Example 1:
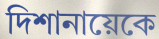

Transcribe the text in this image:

দিশানায়েকে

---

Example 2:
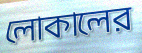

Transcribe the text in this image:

লোকালের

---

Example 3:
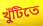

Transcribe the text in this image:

খুঁটিতে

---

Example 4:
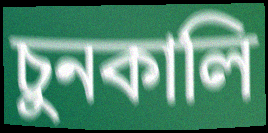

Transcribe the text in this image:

চুনকালি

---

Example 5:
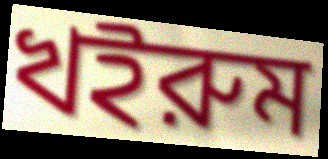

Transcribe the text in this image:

খইরুম